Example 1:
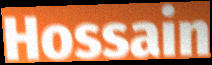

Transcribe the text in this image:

Hossain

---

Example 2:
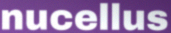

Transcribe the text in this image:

nucellus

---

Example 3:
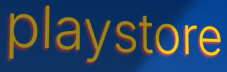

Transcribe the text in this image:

playstore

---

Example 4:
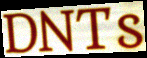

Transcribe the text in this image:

DNTs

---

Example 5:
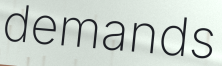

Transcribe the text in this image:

demands